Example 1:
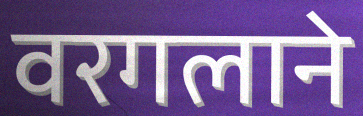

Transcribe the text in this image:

वरगलाने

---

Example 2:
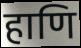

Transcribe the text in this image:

हाणि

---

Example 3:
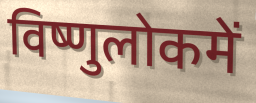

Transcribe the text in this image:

विष्णुलोकमें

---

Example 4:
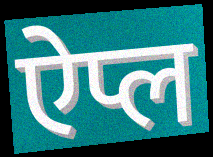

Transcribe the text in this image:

ऐप्ल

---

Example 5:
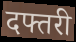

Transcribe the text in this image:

दफ्तरी